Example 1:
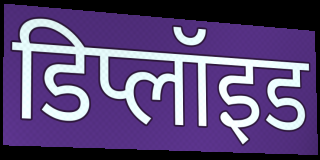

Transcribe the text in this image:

डिप्लॉइड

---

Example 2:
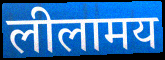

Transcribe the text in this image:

लीलामय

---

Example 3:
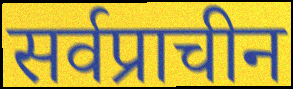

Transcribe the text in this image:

सर्वप्राचीन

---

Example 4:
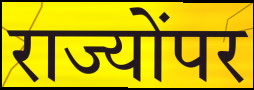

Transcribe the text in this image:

राज्योंपर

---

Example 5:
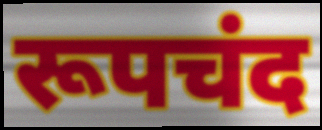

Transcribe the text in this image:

रूपचंद